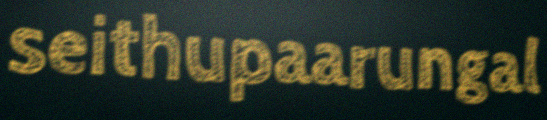
seithupaarungal